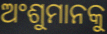
ଅଂଶୁମାନକୁ